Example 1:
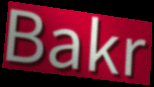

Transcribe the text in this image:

Bakr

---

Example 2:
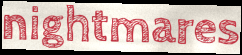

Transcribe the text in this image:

nightmares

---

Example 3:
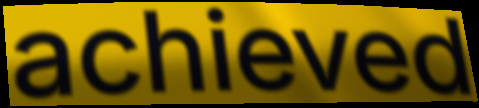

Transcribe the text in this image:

achieved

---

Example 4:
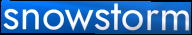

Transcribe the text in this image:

snowstorm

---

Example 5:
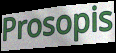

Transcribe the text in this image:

Prosopis